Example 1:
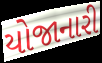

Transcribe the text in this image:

યોજાનારી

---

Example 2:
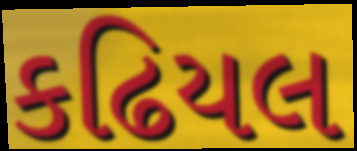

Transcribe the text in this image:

કઢિયલ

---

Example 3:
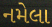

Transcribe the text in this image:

નમેલા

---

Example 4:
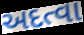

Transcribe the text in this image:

અદત્વા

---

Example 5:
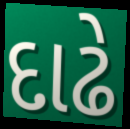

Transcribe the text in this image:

દાઢે